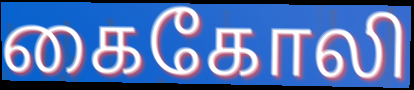
கைகோலி